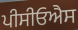
ਪੀਸੀਓਐਸ